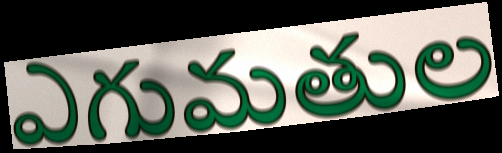
ఎగుమతుల